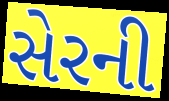
સેરની